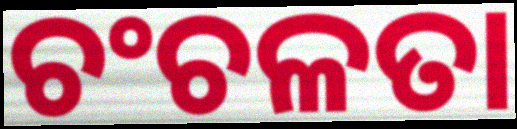
ଚଂଚଳତା